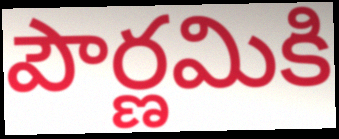
పౌర్ణమికి